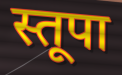
स्तूपा